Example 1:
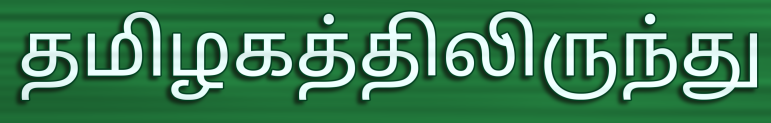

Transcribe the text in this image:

தமிழகத்திலிருந்து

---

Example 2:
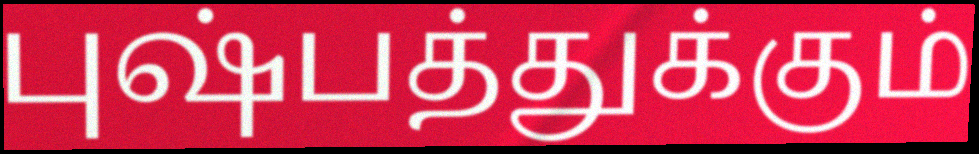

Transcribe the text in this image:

புஷ்பத்துக்கும்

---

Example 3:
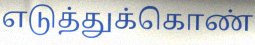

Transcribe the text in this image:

எடுத்துக்கொண்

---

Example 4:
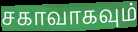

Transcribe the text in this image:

சகாவாகவும்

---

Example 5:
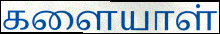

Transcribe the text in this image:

களையாள்